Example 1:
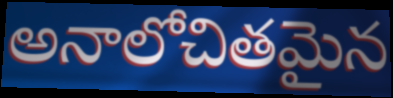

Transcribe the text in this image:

అనాలోచితమైన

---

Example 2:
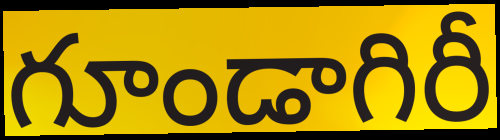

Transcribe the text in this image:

గూండాగిరీ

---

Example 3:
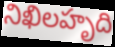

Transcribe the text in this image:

నిఖిలహృది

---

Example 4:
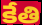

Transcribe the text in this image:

కేతి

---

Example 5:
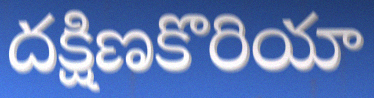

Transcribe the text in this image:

దక్షిణకొరియా